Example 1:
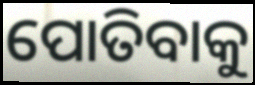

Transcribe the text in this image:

ପୋତିବାକୁ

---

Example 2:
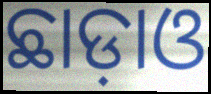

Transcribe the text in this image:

ଛାଡ଼ାଓ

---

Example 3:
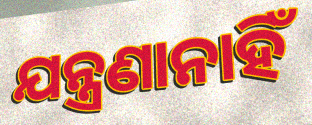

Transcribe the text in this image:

ଯନ୍ତ୍ରଣାନାହିଁ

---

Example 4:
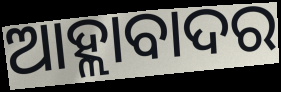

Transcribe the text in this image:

ଆହ୍ଲାବାଦର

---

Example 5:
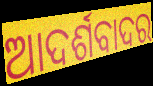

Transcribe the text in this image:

ଆଦର୍ଶବାଦର